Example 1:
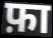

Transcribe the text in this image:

फ़ा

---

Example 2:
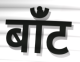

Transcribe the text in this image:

बांँट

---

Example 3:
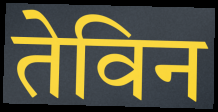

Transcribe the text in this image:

तेविन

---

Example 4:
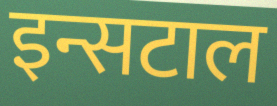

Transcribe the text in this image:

इन्सटाल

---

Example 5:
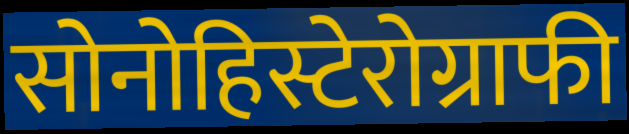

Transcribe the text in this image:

सोनोहिस्टेरोग्राफी